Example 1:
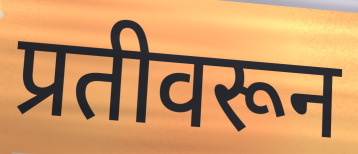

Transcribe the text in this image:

प्रतीवरून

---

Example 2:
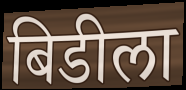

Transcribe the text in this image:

बिडीला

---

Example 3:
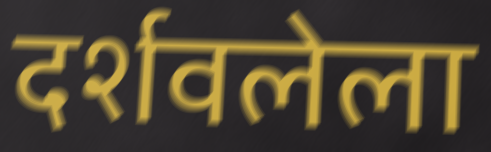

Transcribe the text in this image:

दर्शवलेला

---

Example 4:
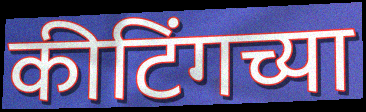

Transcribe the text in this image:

कीटिंगच्या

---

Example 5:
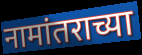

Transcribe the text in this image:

नामांतराच्या